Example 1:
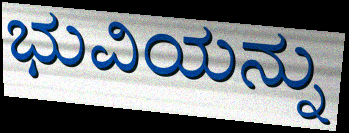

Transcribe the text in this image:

ಭುವಿಯನ್ನು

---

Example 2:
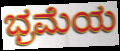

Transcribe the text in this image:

ಭ್ರಮೆಯ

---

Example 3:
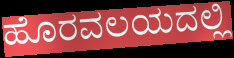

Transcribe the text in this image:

ಹೊರವಲಯದಲ್ಲಿ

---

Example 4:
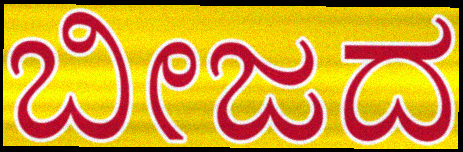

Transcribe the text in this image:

ಬೀಜದ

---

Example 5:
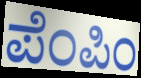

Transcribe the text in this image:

ಪೆಂಪಿಂ